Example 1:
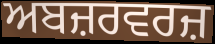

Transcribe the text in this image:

ਅਬਜ਼ਰਵਰਜ਼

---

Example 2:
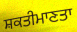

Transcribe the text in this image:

ਸ਼ਕਤੀਮਾਣਤਾ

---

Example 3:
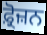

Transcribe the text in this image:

ਫ਼੍ਰੋਜ਼ਨ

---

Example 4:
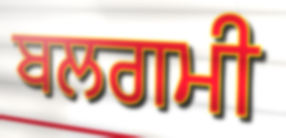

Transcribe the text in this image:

ਬਲਗਮੀ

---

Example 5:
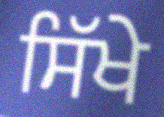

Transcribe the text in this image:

ਸਿੱਖੇ